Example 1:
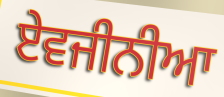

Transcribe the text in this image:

ਏਵਜੀਨੀਆ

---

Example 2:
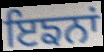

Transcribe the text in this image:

ਇਙਨਾਂ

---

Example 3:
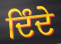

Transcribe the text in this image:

ਦਿੰਦੇ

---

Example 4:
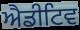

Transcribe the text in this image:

ਐਡੀਟਿਵ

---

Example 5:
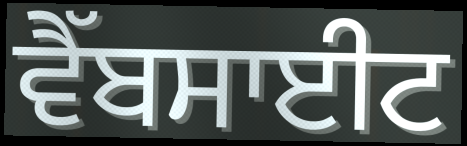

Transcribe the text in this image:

ਵੈੱਬਸਾਈਟ